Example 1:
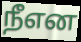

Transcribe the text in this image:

நீஎன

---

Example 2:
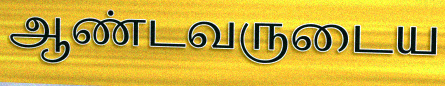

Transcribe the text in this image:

ஆண்டவருடைய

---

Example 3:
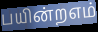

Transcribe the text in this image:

பயின்றஎம்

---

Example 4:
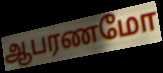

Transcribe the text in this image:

ஆபரணமோ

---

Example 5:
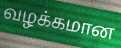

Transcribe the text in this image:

வழக்கமான